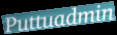
Puttuadmin